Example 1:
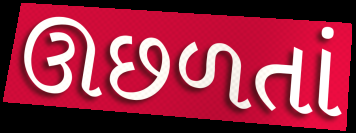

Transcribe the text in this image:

ઊછળતાં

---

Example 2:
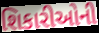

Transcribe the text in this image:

શિકારીઓની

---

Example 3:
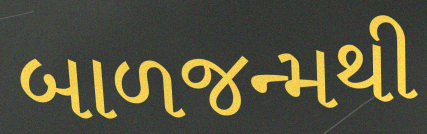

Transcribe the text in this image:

બાળજન્મથી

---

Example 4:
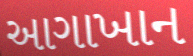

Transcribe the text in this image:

આગાખાન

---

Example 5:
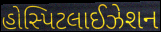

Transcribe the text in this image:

હોસ્પિટલાઈઝેશન